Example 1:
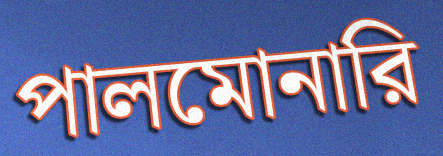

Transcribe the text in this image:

পালমোনারি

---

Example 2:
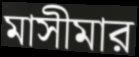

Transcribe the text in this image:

মাসীমার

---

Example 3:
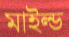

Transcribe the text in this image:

মাইল্ড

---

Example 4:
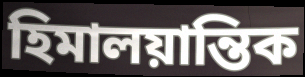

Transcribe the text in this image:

হিমালয়ান্তিক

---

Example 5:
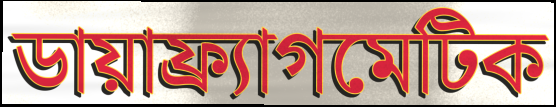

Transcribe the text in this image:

ডায়াফ্র্যাগমেটিক